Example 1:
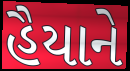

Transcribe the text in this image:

હૈયાને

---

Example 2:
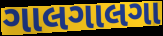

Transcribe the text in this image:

ગાલગાલગા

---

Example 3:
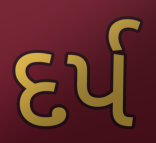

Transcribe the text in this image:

દર્પ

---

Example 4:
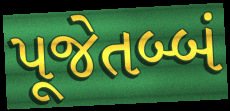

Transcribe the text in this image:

પૂજેતબ્બં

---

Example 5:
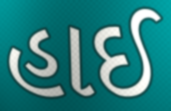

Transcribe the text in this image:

હાઈ